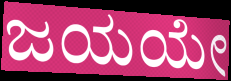
ಜಯಯೇ